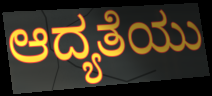
ಆದ್ಯತೆಯು